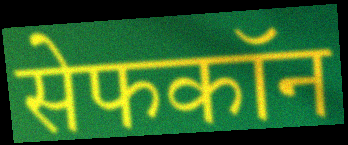
सेफकॉन